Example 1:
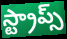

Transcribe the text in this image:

స్ట్రాప్స్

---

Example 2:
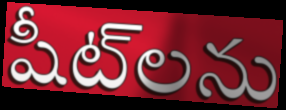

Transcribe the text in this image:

షీట్‌లను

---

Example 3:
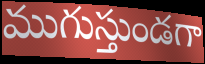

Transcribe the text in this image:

ముగుస్తుండగా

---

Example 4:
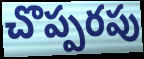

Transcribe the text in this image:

చొప్పరపు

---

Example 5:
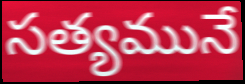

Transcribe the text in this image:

సత్యమునే